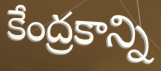
కేంద్రకాన్ని